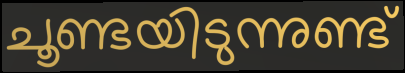
ചൂണ്ടയിടുന്നുണ്ട്